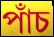
পাঁচ